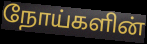
நோய்களின்